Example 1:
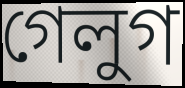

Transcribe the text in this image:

গেলুগ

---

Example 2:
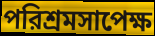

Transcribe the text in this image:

পরিশ্রমসাপেক্ষ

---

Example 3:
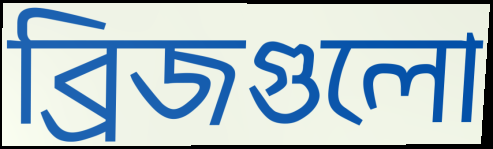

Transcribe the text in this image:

ব্রিজগুলো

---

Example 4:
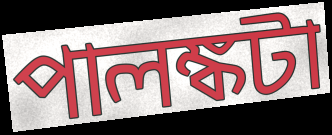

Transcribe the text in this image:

পালঙ্কটা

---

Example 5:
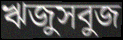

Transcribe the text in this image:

ঋজুসবুজ